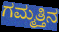
ಗಮ್ಮತ್ತಿನ